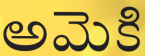
అమెకి